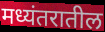
मध्यंतरातील